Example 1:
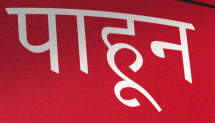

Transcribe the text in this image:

पाहून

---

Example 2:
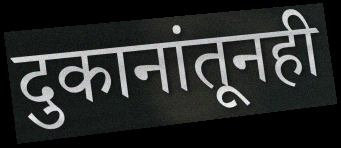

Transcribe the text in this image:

दुकानांतूनही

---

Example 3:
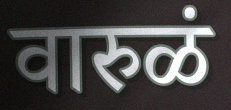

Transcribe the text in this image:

वारुळं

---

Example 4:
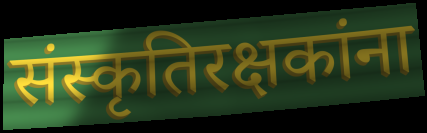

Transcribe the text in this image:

संस्कृतिरक्षकांना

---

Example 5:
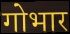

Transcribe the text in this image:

गोभार